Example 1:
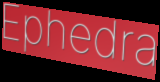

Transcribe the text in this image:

Ephedra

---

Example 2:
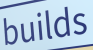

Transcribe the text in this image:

builds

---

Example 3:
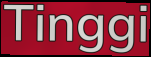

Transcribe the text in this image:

Tinggi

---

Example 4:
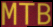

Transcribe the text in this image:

MTB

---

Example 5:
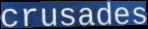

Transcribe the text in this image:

crusades